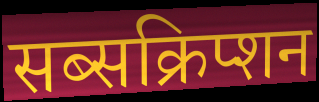
सब्सक्रिप्शन